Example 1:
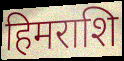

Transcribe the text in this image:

हिमराशि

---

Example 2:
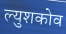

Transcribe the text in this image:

ल्युशकोव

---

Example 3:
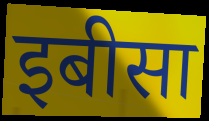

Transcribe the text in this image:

इबीसा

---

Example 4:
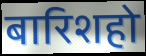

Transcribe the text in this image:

बारिशहो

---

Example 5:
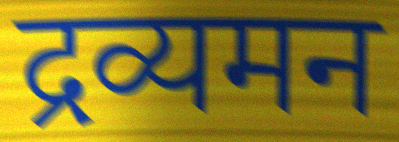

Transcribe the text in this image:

द्रव्यमन